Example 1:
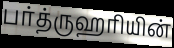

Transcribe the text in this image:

பர்த்ருஹரியின்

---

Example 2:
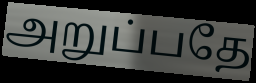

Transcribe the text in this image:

அறுப்பதே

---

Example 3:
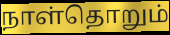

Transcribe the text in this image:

நாள்தொறும்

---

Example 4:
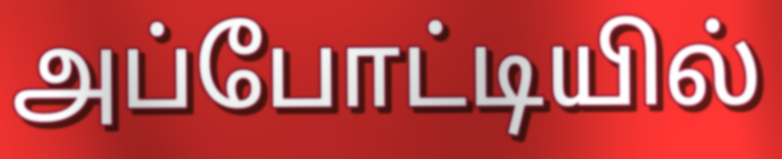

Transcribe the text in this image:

அப்போட்டியில்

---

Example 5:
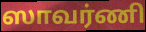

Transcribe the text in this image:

ஸாவர்ணி